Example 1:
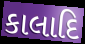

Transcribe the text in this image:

કાલાદિ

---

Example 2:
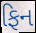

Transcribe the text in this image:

ફિન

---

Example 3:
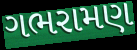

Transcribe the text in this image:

ગભરામણ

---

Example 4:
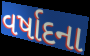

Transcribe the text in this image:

વર્ષાદના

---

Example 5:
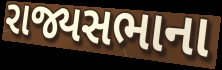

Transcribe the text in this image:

રાજ્યસભાના